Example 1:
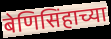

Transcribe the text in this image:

बेणिसिंहाच्या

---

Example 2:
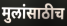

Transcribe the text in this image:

मुलांसाठीच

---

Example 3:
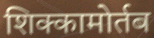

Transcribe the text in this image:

शिक्‍कामोर्तब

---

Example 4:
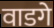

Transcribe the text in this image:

वाडगे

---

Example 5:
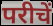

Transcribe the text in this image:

परीचें